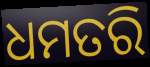
ଧମତରି